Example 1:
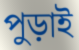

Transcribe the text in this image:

পুড়াই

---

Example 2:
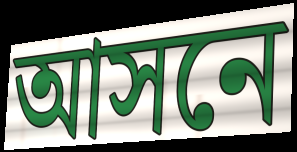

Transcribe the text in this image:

আসনে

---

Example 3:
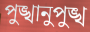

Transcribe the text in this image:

পুঙ্খানুপুঙ্খ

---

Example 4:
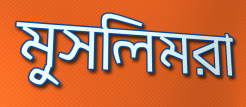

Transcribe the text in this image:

মুসলিমরা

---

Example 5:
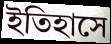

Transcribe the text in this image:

ইতিহাসে